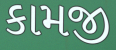
કામજી